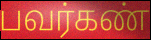
பவர்கண்